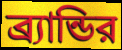
ব্র্যান্ডির